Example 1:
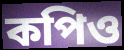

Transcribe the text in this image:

কপিও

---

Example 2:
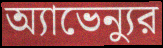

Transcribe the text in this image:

অ্যাভেন্যুর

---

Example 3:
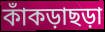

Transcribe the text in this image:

কাঁকড়াছড়া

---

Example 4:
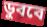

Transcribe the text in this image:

ডুববে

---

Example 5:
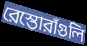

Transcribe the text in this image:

রেস্তোরাঁগুলি